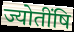
ज्योतींषि